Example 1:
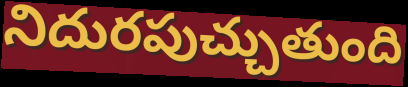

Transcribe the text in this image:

నిదురపుచ్చుతుంది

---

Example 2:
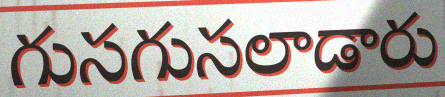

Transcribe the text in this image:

గుసగుసలాడారు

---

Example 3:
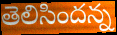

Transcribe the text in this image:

తెలిసిందన్న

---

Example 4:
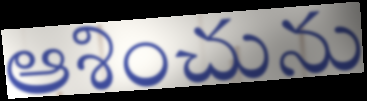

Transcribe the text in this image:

ఆశించును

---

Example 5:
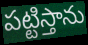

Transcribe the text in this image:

పట్టిస్తాను